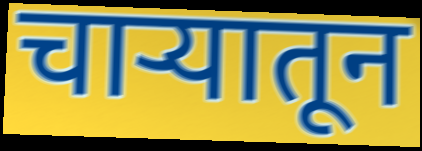
चाऱ्यातून